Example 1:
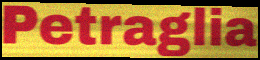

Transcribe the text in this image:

Petraglia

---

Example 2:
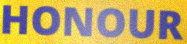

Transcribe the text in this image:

HONOUR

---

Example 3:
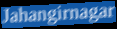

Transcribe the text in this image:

Jahangirnagar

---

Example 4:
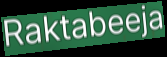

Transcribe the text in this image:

Raktabeeja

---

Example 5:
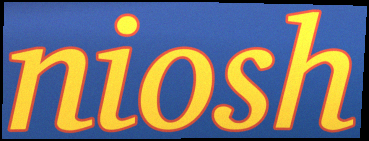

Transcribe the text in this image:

niosh